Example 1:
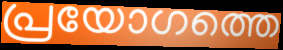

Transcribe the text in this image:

പ്രയോഗത്തെ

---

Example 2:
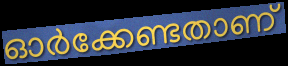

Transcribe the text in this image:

ഓർക്കേണ്ടതാണ്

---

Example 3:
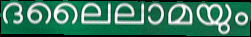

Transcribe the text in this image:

ദലൈലാമയും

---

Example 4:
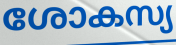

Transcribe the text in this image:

ശോകസ്യ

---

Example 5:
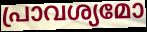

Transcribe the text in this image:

പ്രാവശ്യമോ